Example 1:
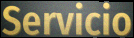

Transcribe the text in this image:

Servicio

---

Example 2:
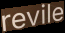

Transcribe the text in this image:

revile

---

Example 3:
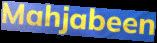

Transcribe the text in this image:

Mahjabeen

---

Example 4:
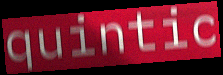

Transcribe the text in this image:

quintic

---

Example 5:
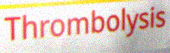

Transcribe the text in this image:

Thrombolysis